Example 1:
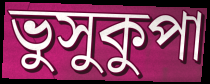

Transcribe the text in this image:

ভুসুকুপা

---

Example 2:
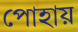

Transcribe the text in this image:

পোহায়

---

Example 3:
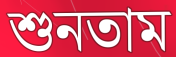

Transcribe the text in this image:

শুনতাম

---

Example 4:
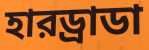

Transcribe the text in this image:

হারড্রাডা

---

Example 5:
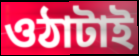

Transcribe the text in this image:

ওঠাটাই